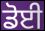
ਡੋਈ